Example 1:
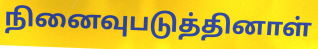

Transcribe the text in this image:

நினைவுபடுத்தினாள்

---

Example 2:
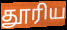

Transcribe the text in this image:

தூரிய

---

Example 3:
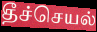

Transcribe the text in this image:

தீச்செயல்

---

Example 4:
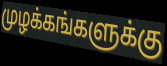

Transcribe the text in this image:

முழக்கங்களுக்கு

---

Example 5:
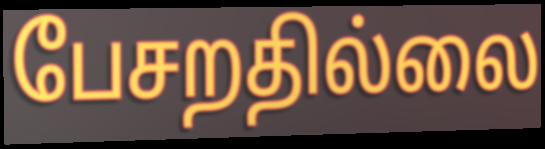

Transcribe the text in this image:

பேசறதில்லை